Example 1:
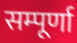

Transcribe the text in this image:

सम्पूर्णा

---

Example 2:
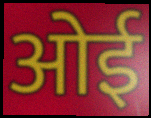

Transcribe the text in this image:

ओई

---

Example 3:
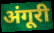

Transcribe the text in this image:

अंगूरी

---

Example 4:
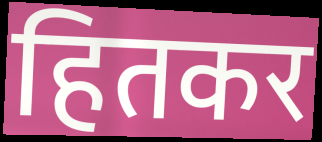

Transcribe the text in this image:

हितकर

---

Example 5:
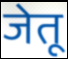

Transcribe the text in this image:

जेतू